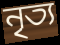
নৃত্য